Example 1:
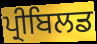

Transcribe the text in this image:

ਪ੍ਰੀਬਿਲਡ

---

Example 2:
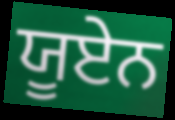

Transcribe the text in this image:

ਯੂਏਨ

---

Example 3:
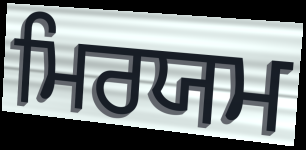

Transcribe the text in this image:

ਮਿਰਯਮ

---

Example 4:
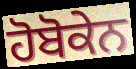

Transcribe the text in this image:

ਹੋਬੋਕੇਨ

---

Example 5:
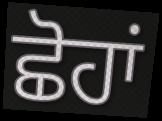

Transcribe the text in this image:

ਛੋਹਾਂ